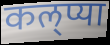
कल्प्या